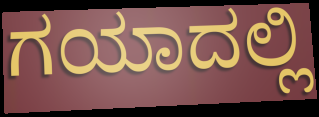
ಗಯಾದಲ್ಲಿ